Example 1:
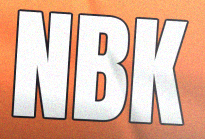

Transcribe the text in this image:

NBK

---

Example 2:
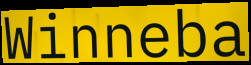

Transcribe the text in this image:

Winneba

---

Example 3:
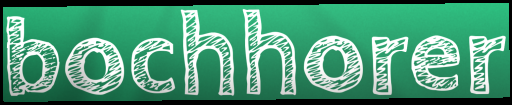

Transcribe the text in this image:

bochhorer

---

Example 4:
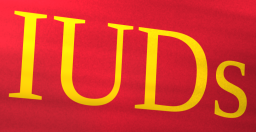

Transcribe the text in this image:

IUDs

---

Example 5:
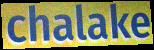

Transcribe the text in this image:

chalake